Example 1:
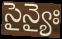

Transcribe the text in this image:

సైన్యైః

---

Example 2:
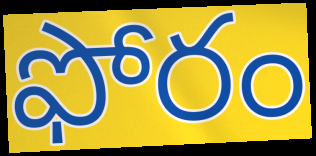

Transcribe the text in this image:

ఫోరం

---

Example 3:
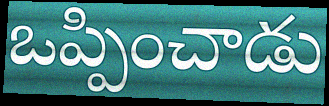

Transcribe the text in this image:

ఒప్పించాడు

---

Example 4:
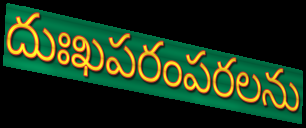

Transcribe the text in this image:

దుఃఖపరంపరలను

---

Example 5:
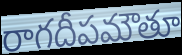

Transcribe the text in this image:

రాగదీపమౌతూ